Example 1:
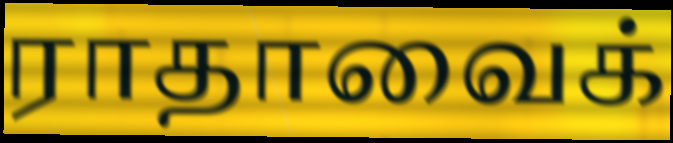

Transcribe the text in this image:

ராதாவைக்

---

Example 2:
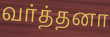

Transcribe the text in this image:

வர்த்தனா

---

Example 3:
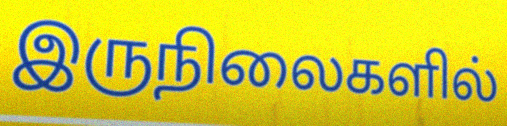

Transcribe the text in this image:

இருநிலைகளில்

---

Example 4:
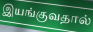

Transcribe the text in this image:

இயங்குவதால்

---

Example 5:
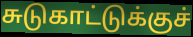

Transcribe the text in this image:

சுடுகாட்டுக்குச்